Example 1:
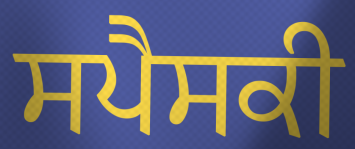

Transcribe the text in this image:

ਸਪੈਸਕੀ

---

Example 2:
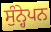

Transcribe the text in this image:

ਸੁੰਨ੍ਹੇਪਨ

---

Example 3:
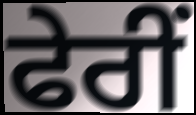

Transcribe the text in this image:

ਫੇਰੀਂ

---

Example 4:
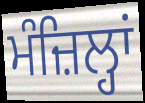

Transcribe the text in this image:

ਮੰਜ਼ਿਲ੍ਹਾਂ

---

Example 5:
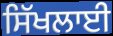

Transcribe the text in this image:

ਸਿੱਖਲਾਈ